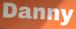
Danny